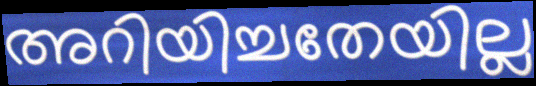
അറിയിച്ചതേയില്ല